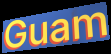
Guam